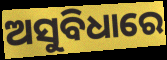
ଅସୁବିଧାରେ